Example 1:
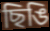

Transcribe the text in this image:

ছিঙি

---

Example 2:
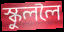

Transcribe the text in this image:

স্কুললৈ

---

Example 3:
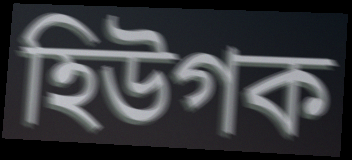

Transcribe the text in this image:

হিউগক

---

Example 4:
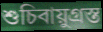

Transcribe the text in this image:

শুচিবায়ুগ্ৰস্ত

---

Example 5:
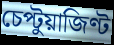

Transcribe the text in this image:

চেপ্টুয়াজিণ্ট